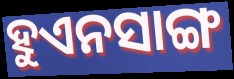
ହୁଏନସାଙ୍ଗ